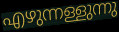
എഴുന്നള്ളുന്നു